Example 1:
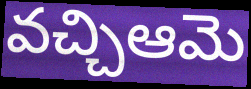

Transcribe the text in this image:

వచ్చిఆమె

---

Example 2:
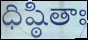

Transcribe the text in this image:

ధిష్ఠితాః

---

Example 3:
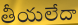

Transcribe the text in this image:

తీయలేదా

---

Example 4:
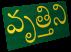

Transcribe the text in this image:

వృత్తిని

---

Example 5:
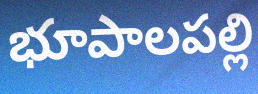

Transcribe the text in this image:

భూపాలపల్లి